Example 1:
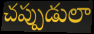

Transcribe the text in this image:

చప్పుడులా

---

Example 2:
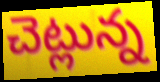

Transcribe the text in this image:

చెట్లున్న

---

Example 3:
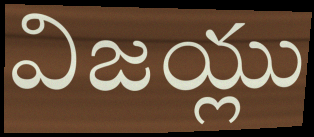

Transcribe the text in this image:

విజయ్లు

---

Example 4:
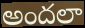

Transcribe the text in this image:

అందలా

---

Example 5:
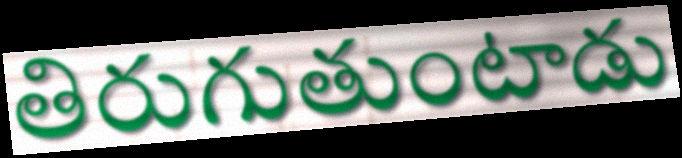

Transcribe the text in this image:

తిరుగుతుంటాడు